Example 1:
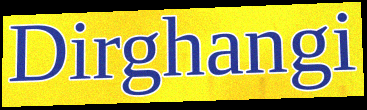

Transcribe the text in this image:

Dirghangi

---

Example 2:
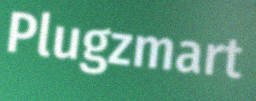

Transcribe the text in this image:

Plugzmart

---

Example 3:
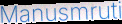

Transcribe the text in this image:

Manusmruti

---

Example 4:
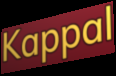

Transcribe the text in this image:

Kappal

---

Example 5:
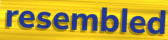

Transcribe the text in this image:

resembled